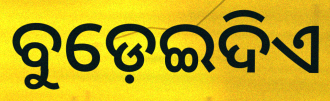
ବୁଡ଼େଇଦିଏ